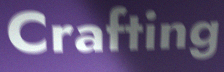
Crafting